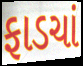
ફાડચાં